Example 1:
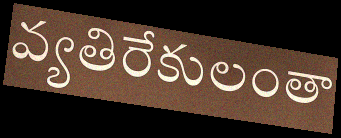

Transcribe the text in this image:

వ్యతిరేకులంతా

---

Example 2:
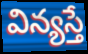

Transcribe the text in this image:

విన్యస్తే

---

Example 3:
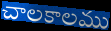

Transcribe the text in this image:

చాలకాలము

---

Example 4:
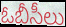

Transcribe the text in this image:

ఓబీసీలు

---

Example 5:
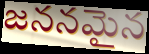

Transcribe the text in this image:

జననమైన